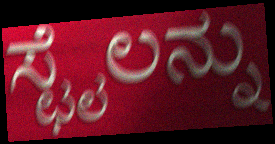
ಸ್ಟೈಲನ್ನು